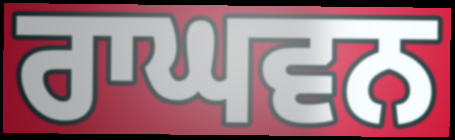
ਰਾਘਵਨ